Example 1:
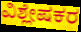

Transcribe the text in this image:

ವಿಶ್ಲೇಷಕರ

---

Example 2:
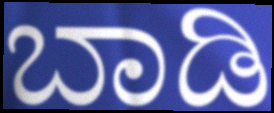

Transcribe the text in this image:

ಬಾಡಿ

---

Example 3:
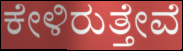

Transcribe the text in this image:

ಕೇಳಿರುತ್ತೇವೆ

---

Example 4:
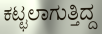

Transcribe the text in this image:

ಕಟ್ಟಲಾಗುತ್ತಿದ್ದ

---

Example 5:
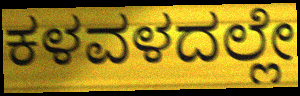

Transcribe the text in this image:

ಕಳವಳದಲ್ಲೇ